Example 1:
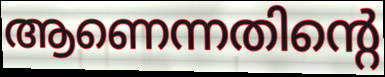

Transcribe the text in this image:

ആണെന്നതിന്റെ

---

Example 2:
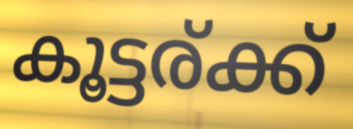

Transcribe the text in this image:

കൂട്ടര്ക്ക്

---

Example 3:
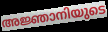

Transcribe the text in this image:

അജ്ഞാനിയുടെ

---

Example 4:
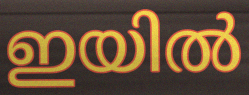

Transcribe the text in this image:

ഇയിൽ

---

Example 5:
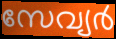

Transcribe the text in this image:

സേവ്യർ